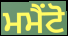
ਮਮੈਂਟੋ